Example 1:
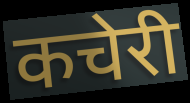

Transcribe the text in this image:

कचेरी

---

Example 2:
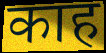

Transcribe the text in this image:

काह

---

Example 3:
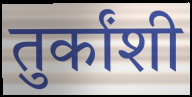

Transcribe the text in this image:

तुर्कांशी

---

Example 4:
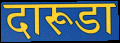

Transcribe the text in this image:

दारूडा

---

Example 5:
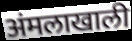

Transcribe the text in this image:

अंमलाखाली